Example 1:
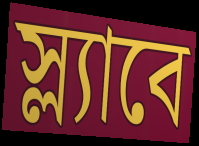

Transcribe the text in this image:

স্ল্যাবে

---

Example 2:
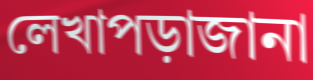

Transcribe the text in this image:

লেখাপড়াজানা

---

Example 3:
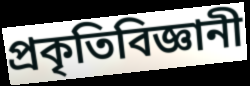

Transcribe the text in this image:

প্রকৃতিবিজ্ঞানী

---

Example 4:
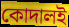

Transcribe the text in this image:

কোদালই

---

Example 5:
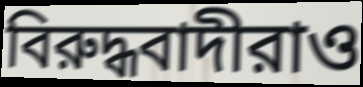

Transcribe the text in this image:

বিরুদ্ধবাদীরাও